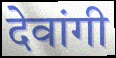
देवांगी